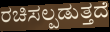
ರಚಿಸಲ್ಪಡುತ್ತದೆ